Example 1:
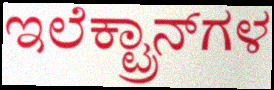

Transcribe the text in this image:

ಇಲೆಕ್ಟ್ರಾನ್‍ಗಳ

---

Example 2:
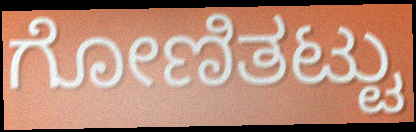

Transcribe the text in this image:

ಗೋಣಿತಟ್ಟು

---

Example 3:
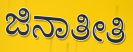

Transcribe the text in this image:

ಜಿನಾತೀತಿ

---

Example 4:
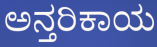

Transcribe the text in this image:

ಅನ್ತರಿಕಾಯ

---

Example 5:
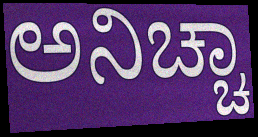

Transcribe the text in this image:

ಅನಿಚ್ಚಾ